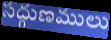
సద్గుణములు